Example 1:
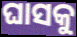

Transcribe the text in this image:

ଘାସକୁ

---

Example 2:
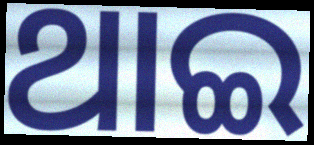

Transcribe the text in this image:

ଥାଇ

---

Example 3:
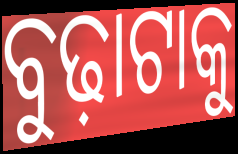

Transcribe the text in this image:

ବୁଢ଼ାଟାକୁ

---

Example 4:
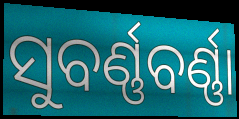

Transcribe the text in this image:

ସୁବର୍ଣ୍ଣବର୍ଣ୍ଣା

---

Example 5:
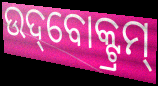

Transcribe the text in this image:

ଉଦ୍‌ବୋକ୍ଟ୍ରମ୍